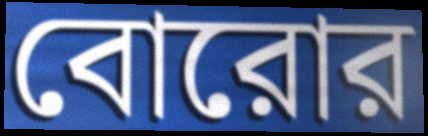
বোরোর